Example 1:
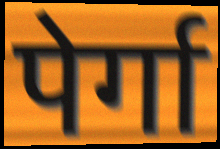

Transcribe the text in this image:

पेर्गा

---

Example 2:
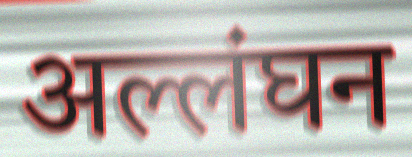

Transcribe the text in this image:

अल्लंघन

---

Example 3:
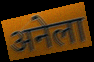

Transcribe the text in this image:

अनेला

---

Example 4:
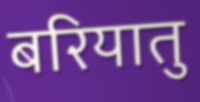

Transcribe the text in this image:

बरियातु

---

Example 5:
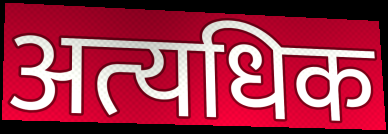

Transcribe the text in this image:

अत्‍यधिक